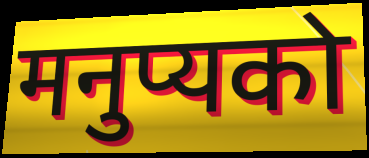
मनुप्यको